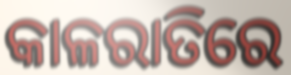
କାଳରାତିରେ